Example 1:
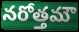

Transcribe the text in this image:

నరోత్తమౌ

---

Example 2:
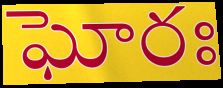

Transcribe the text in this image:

ఘోరః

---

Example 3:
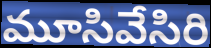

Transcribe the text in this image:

మూసివేసిరి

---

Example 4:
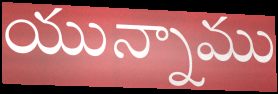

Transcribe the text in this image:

యున్నాము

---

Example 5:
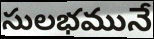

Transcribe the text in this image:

సులభమునే